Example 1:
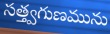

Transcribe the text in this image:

సత్త్వగుణమును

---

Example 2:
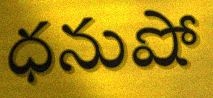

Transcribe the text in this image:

ధనుషో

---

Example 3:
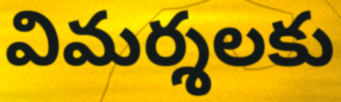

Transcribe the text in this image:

విమర్శలకు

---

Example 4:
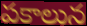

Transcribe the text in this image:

పకాలున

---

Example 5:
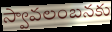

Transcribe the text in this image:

స్వావలంబనకు